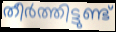
തീർത്തിട്ടുണ്ട്